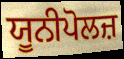
ਯੂਨੀਪੋਲਜ਼